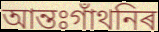
আন্তঃগাঁথনিৰ